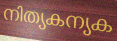
നിത്യകന്യക